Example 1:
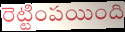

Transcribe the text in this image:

రెట్టింపయింది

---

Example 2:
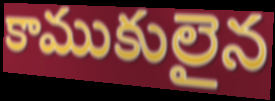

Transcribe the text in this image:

కాముకులైన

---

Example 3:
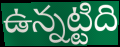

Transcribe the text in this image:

ఉన్నట్టిది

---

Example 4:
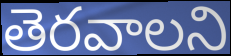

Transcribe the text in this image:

తెరవాలని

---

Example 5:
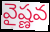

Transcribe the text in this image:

వైష్ణవ